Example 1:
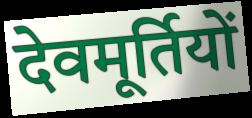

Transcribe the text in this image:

देवमूर्तियों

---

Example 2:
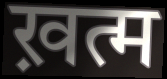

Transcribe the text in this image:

ख़त्‍म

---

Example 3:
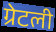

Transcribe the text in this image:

ग्रेटली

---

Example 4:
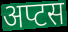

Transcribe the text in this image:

अप्टस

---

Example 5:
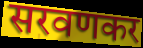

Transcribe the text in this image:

सरवणकर